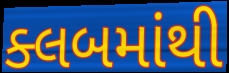
ક્લબમાંથી